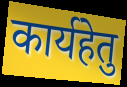
कार्यहेतु